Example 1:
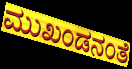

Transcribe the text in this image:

ಮುಖಂಡನಂತೆ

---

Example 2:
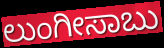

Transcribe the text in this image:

ಲುಂಗೀಸಾಬು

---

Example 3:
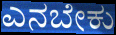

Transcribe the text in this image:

ಎನಬೇಕು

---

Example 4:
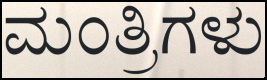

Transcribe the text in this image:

ಮಂತ್ರಿಗಳು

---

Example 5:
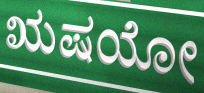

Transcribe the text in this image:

ಋಷಯೋ